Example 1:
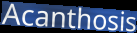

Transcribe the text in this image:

Acanthosis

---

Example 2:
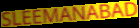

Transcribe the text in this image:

SLEEMANABAD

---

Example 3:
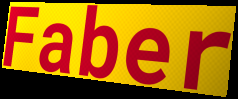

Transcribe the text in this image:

Faber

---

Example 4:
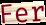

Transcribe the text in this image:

Fer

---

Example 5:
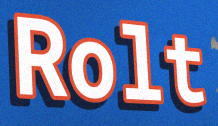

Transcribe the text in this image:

Rolt